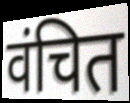
वंचित